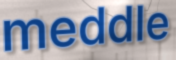
meddle